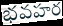
భవహర